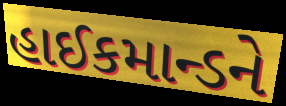
હાઈકમાન્ડને